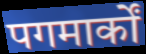
पगमार्कों